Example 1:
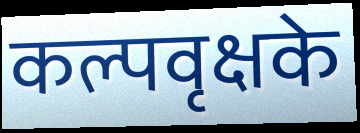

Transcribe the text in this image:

कल्पवृक्षके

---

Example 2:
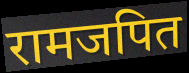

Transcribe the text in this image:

रामजपित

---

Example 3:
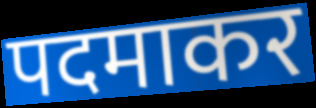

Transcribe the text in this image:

पदमाकर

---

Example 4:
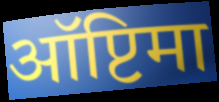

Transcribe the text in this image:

ऑप्टिमा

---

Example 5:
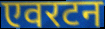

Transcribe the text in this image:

एवरटन